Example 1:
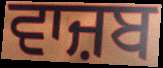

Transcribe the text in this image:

ਵਾਜ਼ਬ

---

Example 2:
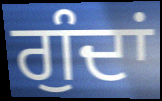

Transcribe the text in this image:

ਗੁੰਦਾਂ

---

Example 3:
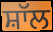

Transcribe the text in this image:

ਸ਼ਾੱਲ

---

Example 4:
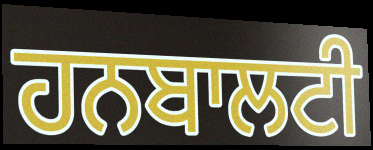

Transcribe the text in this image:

ਹਨਬਾਲਟੀ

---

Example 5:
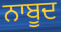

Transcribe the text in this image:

ਨਾਬੂਦ